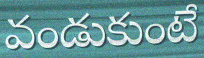
వండుకుంటే